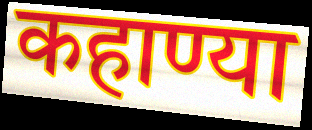
कहाण्या